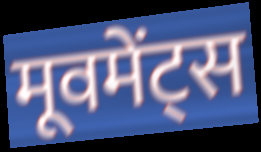
मूवमेंट्स